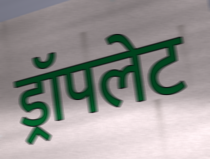
ड्रॉपलेट